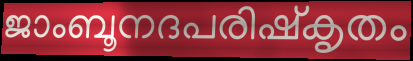
ജാംബൂനദപരിഷ്കൃതം